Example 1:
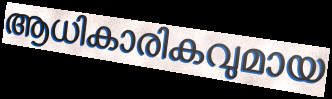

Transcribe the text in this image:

ആധികാരികവുമായ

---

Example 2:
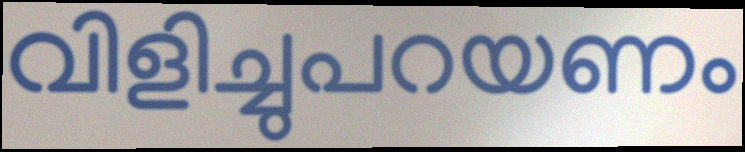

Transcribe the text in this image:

വിളിച്ചുപറയണം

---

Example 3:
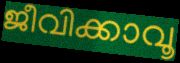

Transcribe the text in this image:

ജീവിക്കാവൂ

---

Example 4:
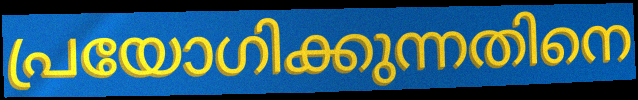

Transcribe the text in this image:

പ്രയോഗിക്കുന്നതിനെ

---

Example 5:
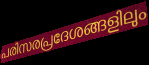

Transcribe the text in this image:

പരിസരപ്രദേശങ്ങളിലും